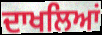
ਦਾਖਲਿਆਂ